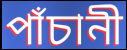
পাঁচানী